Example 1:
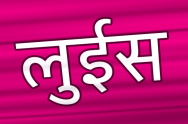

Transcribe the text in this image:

लुईस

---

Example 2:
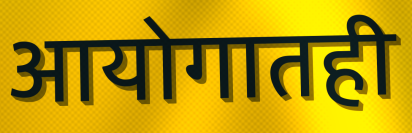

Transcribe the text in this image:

आयोगातही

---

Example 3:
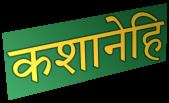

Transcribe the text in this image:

कशानेहि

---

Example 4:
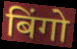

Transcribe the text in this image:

बिंगो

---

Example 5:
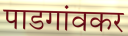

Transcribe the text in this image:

पाडगांवकर